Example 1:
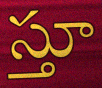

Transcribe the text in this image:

స్తూ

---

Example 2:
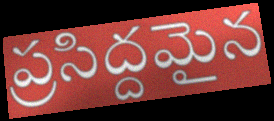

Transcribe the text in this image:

ప్రసిద్దమైన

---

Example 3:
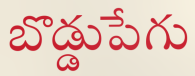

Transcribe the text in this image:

బొడ్డుపేగు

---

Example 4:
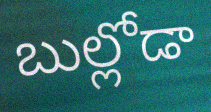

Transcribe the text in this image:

బుల్లోడా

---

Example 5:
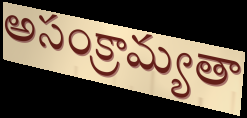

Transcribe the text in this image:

అసంక్రామ్యతా